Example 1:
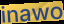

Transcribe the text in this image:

inawo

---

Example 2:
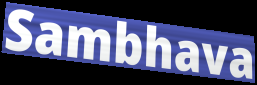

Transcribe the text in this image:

Sambhava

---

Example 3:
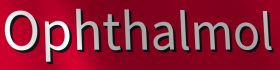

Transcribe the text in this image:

Ophthalmol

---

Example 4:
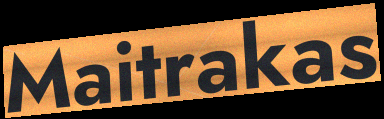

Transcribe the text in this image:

Maitrakas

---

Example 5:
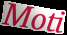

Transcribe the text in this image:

Moti